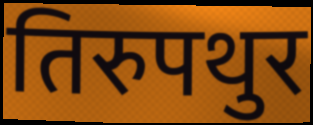
तिरुपथुर